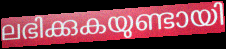
ലഭിക്കുകയുണ്ടായി